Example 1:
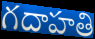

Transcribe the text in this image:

గదాహతి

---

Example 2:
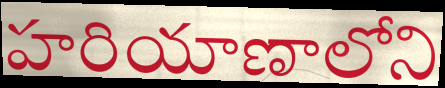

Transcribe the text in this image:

హరియాణాలోని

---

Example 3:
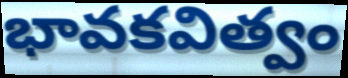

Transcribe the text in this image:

భావకవిత్వం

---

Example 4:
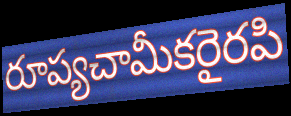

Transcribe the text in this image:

రూప్యచామీకరైరపి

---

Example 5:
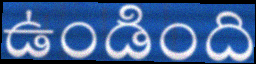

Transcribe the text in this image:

ఉండింది